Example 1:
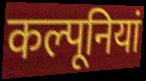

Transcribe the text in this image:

कल्पूनियां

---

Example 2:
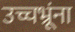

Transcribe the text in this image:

उच्चभ्रूंना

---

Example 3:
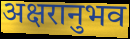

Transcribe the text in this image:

अक्षरानुभव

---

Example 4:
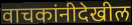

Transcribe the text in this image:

वाचकांनीदेखील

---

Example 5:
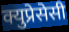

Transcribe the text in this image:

क्युप्रेसेसी